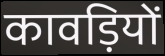
कावड़ियों